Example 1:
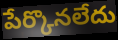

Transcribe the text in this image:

పేర్కొనలేదు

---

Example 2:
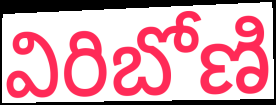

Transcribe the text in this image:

విరిబోణి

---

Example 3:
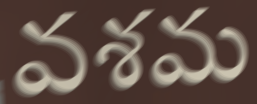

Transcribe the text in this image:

వశమ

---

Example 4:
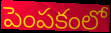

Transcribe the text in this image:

పెంపకంలో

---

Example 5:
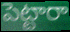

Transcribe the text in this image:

పెట్టారా